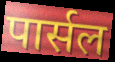
पार्सल